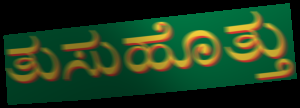
ತುಸುಹೊತ್ತು